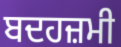
ਬਦਹਜ਼ਮੀ